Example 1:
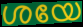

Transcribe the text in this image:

ശയേ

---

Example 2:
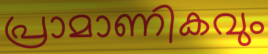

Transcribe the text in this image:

പ്രാമാണികവും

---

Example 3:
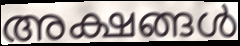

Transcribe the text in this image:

അക്ഷങ്ങൾ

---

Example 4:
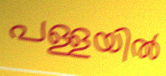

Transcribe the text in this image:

പള്ളയിൽ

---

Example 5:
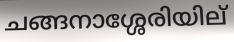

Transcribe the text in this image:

ചങ്ങനാശ്ശേരിയില്